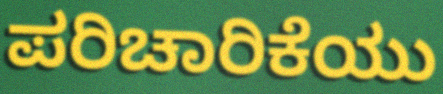
ಪರಿಚಾರಿಕೆಯು